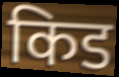
किड